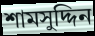
শামসুদ্দিন